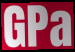
GPa